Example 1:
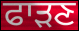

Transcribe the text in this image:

ਫਾੜਣ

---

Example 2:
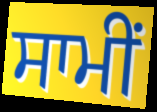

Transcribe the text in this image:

ਸਾਮੀਂ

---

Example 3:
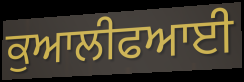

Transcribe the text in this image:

ਕੁਆਲੀਫਆਈ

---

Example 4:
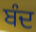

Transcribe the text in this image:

ਬੰਦ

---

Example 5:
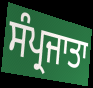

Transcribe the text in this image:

ਸੰਪ੍ਰਜਾਤਾ